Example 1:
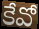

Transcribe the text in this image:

కేవో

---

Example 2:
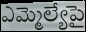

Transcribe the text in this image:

ఎమ్మెల్యేపై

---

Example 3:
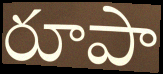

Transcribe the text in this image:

రూపా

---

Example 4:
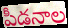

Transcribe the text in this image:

పీడనాల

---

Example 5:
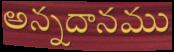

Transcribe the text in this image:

అన్నదానము